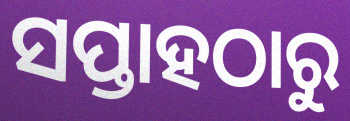
ସପ୍ତାହଠାରୁ